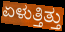
ಏಳುತ್ತಿತ್ತು